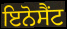
ਇਨੋਸੈਂਟ